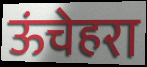
ऊंचेहरा